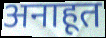
अनाहूत